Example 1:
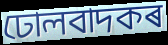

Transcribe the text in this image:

ঢোলবাদকৰ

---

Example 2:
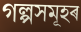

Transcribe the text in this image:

গল্পসমূহৰ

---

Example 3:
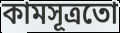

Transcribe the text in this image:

কামসূত্ৰতো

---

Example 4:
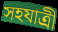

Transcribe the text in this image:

সহযাত্ৰী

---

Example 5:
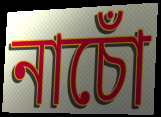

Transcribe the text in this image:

নাচোঁ